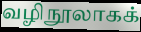
வழிநூலாகக்